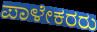
ಪಾಳೇಕರರು